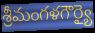
శ్రీమంగళగౌర్యై